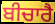
ਬੀਚਾਰੈ